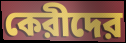
কেরীদের